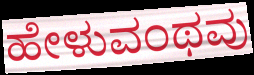
ಹೇಳುವಂಥವು